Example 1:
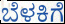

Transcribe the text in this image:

ಬೆಳಕಿಗೆ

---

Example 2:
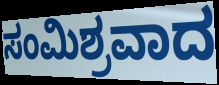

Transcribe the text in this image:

ಸಂಮಿಶ್ರವಾದ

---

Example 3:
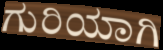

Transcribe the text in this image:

ಗುರಿಯಾಗಿ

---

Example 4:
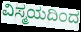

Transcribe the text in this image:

ವಿಸ್ಮಯದಿಂದ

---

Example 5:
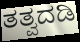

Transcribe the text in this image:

ತತ್ವದಡಿ